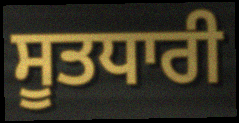
ਸੂਤਧਾਰੀ